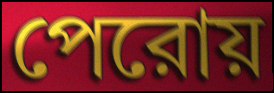
পেরোয়